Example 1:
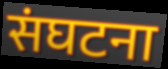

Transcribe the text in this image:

संघटना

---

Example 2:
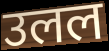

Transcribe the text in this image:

उलल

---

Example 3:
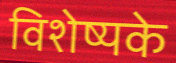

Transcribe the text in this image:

विशेष्यके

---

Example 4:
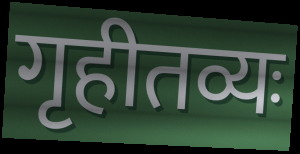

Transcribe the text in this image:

गृहीतव्यः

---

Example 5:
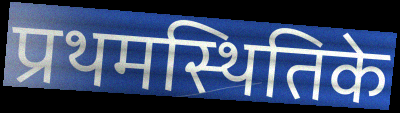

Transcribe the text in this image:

प्रथमस्थितिके